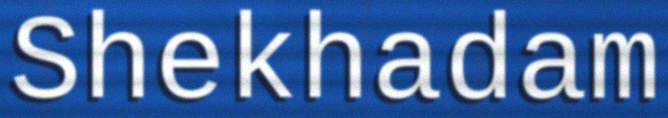
Shekhadam